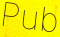
Pub